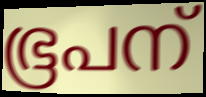
ഭൂപന്